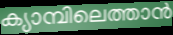
ക്യാമ്പിലെത്താൻ